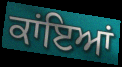
ਕਾਂਇਆਂ